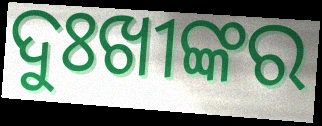
ଦୁଃଖୀଙ୍କର